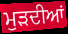
ਮੁੜਦੀਆਂ